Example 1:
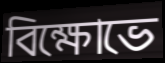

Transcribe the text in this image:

বিক্ষোভে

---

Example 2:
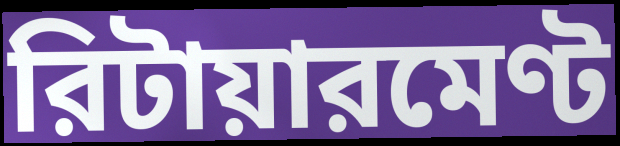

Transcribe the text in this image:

রিটায়ারমেণ্ট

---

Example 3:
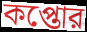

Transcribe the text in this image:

কপ্তোর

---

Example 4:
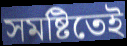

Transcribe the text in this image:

সমষ্টিতেই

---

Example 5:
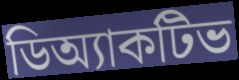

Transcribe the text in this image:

ডিঅ্যাকটিভ